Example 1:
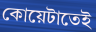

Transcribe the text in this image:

কোয়েটাতেই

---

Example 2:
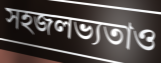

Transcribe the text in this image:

সহজলভ্যতাও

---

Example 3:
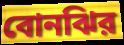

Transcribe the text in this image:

বোনঝির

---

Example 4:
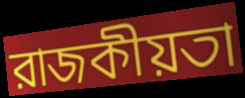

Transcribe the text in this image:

রাজকীয়তা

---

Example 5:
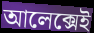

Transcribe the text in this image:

আলেক্সেই